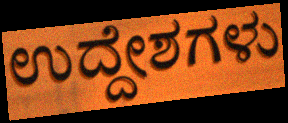
ಉದ್ದೇಶಗಳು